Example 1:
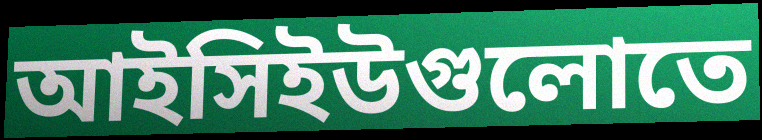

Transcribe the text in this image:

আইসিইউগুলোতে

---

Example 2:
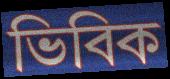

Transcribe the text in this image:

ভিবিক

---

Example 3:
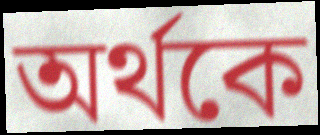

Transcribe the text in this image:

অর্থকে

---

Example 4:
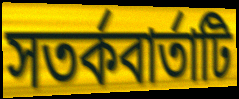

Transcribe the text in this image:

সতর্কবার্তাটি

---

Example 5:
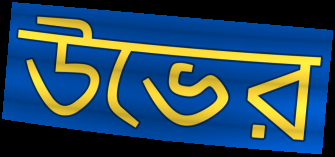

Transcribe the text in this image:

উভের